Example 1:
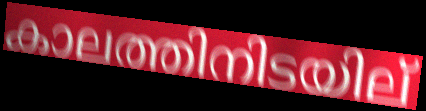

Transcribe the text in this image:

കാലത്തിനിടയില്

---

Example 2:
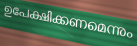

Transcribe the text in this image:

ഉപേക്ഷിക്കണമെന്നും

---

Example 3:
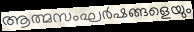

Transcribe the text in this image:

ആത്മസംഘർഷങ്ങളെയും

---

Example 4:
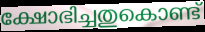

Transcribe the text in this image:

ക്ഷോഭിച്ചതുകൊണ്ട്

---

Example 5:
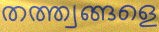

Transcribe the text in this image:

തത്ത്വങ്ങളെ